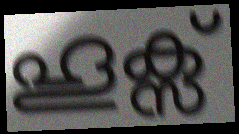
ഹൂക്സ്